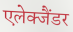
एलेक्जैंडर